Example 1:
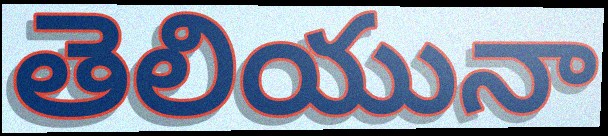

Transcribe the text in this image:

తెలియునా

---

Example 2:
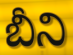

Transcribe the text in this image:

బీని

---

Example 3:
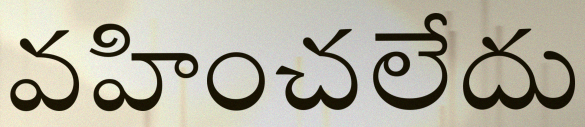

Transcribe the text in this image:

వహించలేదు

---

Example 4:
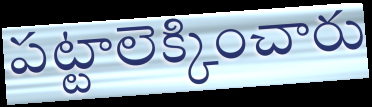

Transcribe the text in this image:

పట్టాలెక్కించారు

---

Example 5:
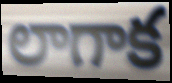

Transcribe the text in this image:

లాగాక